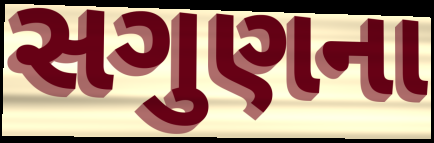
સગુણના